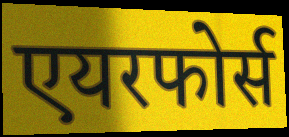
एयरफोर्स